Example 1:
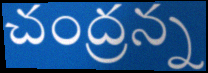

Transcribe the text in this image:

చంద్రన్న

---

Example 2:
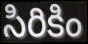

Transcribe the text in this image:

సిరికిం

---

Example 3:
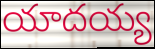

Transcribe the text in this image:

యాదయ్య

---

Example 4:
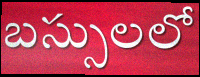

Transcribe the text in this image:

బస్సులలో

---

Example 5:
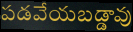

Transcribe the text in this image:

పడవేయబడ్డావు